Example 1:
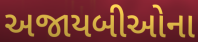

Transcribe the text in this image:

અજાયબીઓના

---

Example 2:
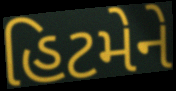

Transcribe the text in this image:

હિટમેને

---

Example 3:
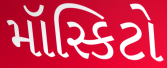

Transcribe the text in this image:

મૉસ્કિટો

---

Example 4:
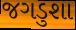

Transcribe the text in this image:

જગડુશા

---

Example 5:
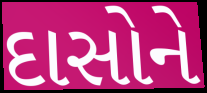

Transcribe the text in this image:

દાસોને